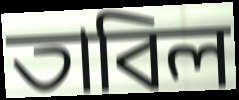
তাবিল